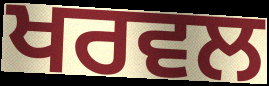
ਖਰਵਲ